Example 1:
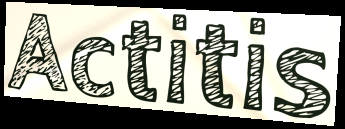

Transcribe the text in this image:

Actitis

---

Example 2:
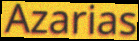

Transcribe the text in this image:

Azarias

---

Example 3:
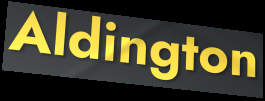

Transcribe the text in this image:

Aldington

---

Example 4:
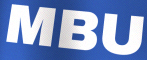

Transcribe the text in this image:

MBU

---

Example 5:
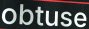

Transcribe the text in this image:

obtuse